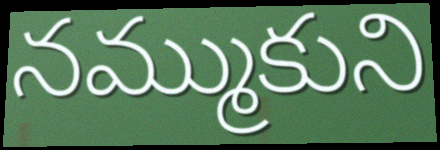
నమ్ముకుని